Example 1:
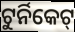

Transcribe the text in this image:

ଟୁର୍ନିକେଟ୍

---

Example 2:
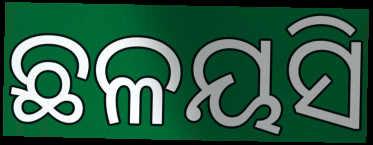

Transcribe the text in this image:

ଛଳୟସି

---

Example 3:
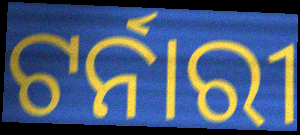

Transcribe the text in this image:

ଟର୍ନାରୀ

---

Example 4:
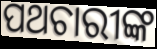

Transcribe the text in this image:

ପଥଚାରୀଙ୍କ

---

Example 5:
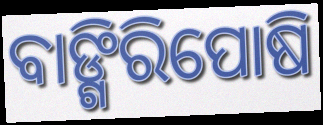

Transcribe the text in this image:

ବାଙ୍ଗିରିପୋଷି